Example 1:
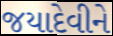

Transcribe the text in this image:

જયાદેવીને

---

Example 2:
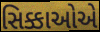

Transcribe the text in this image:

સિક્કાઓએ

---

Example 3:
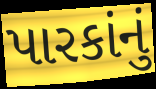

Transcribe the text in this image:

પારકાંનું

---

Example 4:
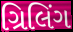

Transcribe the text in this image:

ગ્રિલિંગ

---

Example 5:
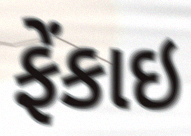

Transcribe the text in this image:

ફેંકાઇ